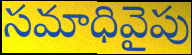
సమాధివైపు